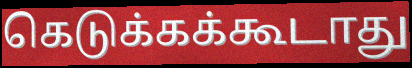
கெடுக்கக்கூடாது